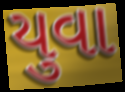
યુવા